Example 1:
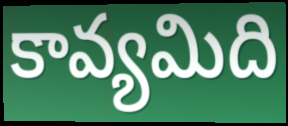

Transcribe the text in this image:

కావ్యమిది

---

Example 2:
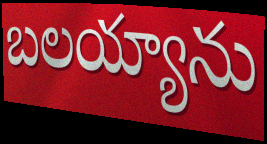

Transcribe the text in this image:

బలయ్యాను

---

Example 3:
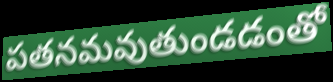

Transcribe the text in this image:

పతనమవుతుండడంతో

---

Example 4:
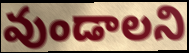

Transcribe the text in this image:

వుండాలని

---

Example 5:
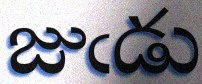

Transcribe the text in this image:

జుఁడు